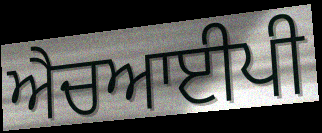
ਐਚਆਈਪੀ